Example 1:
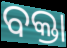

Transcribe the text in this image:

ବକ୍ତା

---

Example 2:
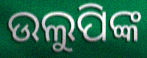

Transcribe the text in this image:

ଉଲୁପିଙ୍କ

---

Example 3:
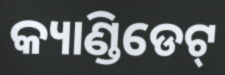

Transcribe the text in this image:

କ୍ୟାଣ୍ଡିଡେଟ୍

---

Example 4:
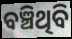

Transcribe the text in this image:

ବଞ୍ଚିଥିବି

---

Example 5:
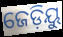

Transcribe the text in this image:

ଜେଡ଼ିୟୁ